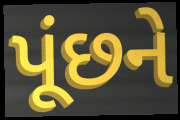
પૂંછને